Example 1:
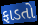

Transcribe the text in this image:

ફાડતો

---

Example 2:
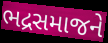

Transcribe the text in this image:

ભદ્રસમાજને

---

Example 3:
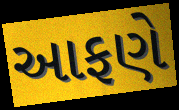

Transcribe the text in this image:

આફણે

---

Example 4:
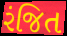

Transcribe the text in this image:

રંજિત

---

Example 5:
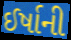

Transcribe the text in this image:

ઈર્ષાની